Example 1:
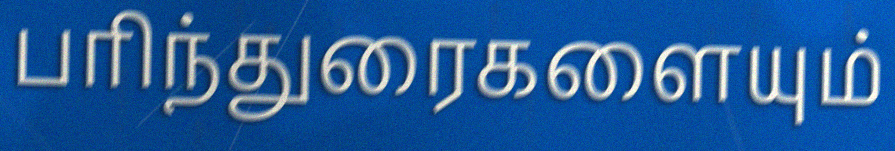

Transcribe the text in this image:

பரிந்துரைகளையும்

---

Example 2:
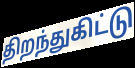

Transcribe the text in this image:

திறந்துகிட்டு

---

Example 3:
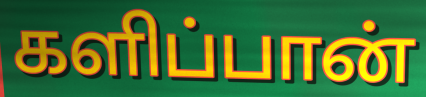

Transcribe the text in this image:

களிப்பான்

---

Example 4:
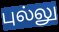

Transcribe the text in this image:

புல்லு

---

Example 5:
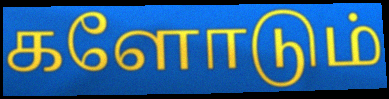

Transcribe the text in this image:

களோடும்